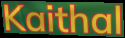
Kaithal